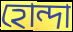
হোন্দা